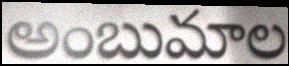
అంబుమాల